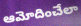
ఆమోదించేలా